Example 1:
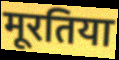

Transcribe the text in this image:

मूरतिया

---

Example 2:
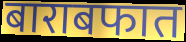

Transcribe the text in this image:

बाराबफात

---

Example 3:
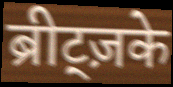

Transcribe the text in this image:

ब्रीट्ज़के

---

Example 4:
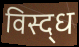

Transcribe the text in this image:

विस्द्ध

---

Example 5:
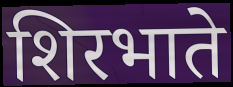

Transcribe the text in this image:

शिरभाते